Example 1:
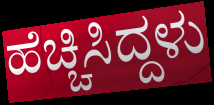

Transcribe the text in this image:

ಹೆಚ್ಚಿಸಿದ್ದಳು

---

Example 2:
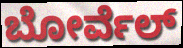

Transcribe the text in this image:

ಬೋರ್ವೆಲ್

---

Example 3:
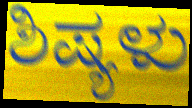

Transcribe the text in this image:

ಶಿಷ್ಯಳು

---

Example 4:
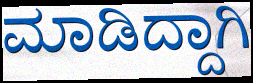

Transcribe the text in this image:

ಮಾಡಿದ್ದಾಗಿ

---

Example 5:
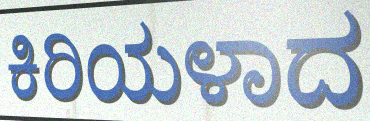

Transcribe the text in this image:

ಕಿರಿಯಳಾದ